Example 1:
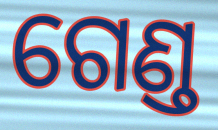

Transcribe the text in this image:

ଗେଣ୍ଡ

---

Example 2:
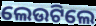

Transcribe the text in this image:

ଲେଉଟିଲେ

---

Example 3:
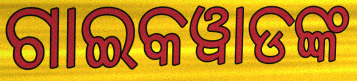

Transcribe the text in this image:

ଗାଇକୱାଡଙ୍କ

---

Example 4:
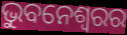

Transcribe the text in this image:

ଭୁବନେଶ୍ଵରର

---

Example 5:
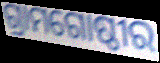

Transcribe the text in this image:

ଗ୍ରାମଗୋଷ୍ଠୀର